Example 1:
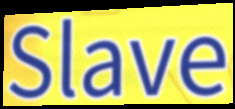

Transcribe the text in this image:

Slave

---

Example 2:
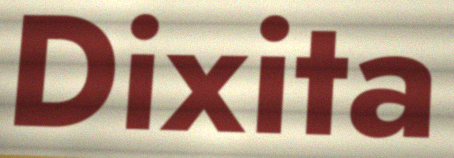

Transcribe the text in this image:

Dixita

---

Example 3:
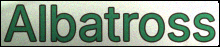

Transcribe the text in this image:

Albatross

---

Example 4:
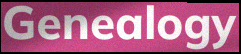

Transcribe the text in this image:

Genealogy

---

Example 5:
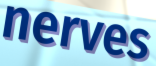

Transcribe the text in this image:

nerves